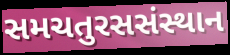
સમચતુરસસંસ્થાન